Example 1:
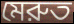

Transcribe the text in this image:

মেৰুত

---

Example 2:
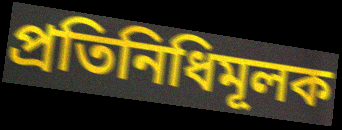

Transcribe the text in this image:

প্ৰতিনিধিমূলক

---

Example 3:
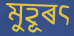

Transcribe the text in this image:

মুহূৰৎ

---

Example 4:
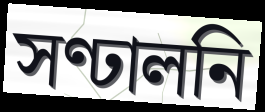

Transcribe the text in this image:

সণ্ঢালনি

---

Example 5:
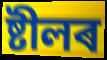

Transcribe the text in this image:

ষ্টীলৰ